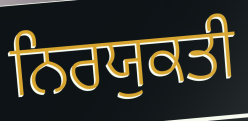
ਨਿਰਯੁਕਤੀ